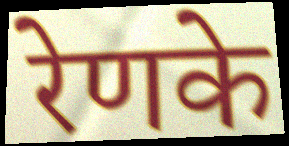
रेणके